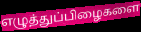
எழுத்துப்பிழைகளை